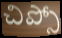
చిప్సో